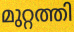
മുറ്റത്തി